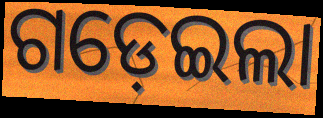
ଗଡ଼େଇଲା